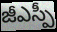
జీఎస్పీ